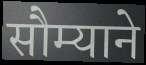
सौम्याने